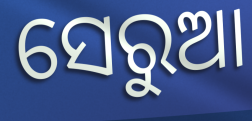
ସେରୁଆ